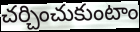
చర్చించుకుంటాం